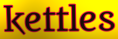
kettles